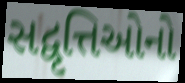
સદ્વૃત્તિઓનો